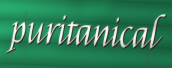
puritanical